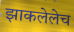
झाकलेलेच